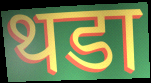
थडा